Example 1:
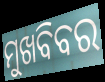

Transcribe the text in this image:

ମୁଖବିବର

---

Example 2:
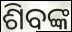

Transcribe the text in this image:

ଶିବଙ୍କ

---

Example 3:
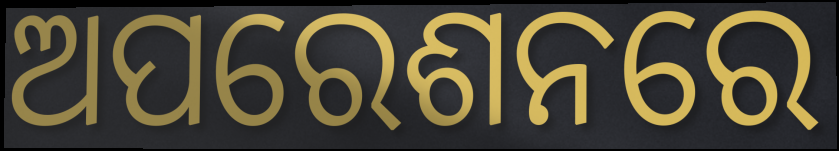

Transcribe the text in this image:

ଅପରେଶନରେ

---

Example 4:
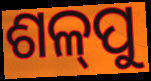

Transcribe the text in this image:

ଶଳ୍‍ପୁ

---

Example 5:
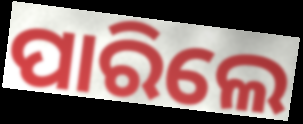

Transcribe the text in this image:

ପାରିଲେ